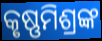
କୃଷ୍ଣମିଶ୍ରଙ୍କ